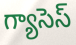
గ్యాసెస్